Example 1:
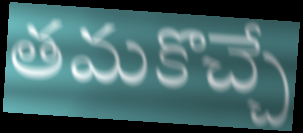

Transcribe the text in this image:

తమకొచ్చే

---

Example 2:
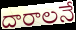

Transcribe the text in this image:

దారాలనే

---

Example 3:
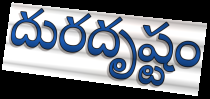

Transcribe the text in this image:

దురదృష్టం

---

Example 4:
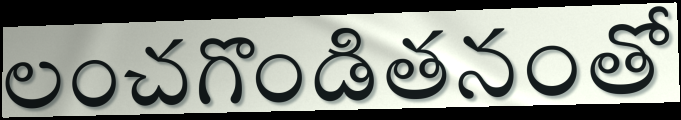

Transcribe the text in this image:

లంచగొండితనంతో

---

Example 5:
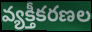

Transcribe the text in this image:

వ్యక్తీకరణల